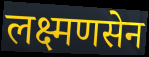
लक्ष्मणसेन